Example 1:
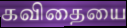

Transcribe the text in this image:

கவிதையை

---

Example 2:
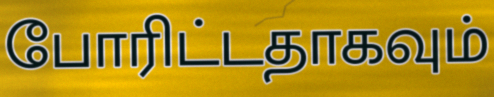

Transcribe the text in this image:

போரிட்டதாகவும்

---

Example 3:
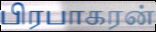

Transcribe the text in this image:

பிரபாகரன்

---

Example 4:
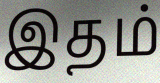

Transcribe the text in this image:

இதம்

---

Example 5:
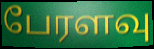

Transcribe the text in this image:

பேரளவு